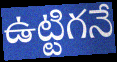
ఉట్టిగనే